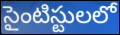
సైంటిస్టులలో